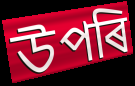
উপৰি